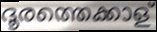
ദൂരത്തെക്കാള്